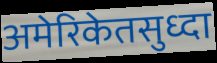
अमेरिकेतसुध्दा